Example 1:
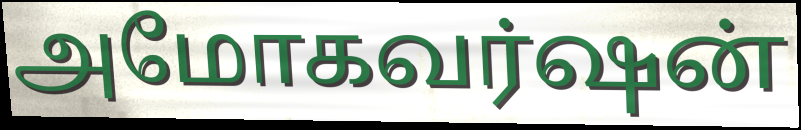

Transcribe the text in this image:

அமோகவர்ஷன்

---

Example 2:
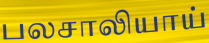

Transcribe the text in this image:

பலசாலியாய்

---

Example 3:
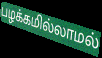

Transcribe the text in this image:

பழக்கமில்லாமல்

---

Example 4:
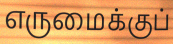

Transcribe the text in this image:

எருமைக்குப்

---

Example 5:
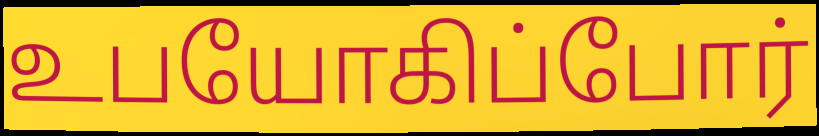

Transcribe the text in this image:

உபயோகிப்போர்